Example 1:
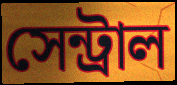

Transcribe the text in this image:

সেন্ট্রাল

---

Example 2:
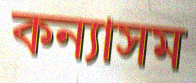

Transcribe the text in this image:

কন্যাসম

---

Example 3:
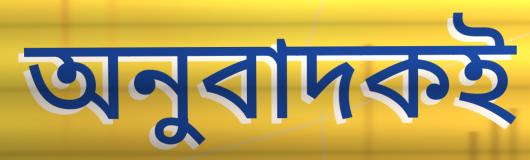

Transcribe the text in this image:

অনুবাদকই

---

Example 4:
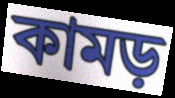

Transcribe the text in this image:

কামড়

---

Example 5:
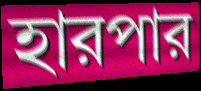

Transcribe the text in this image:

হারপার